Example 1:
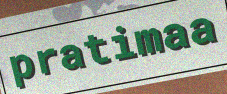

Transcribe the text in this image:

pratimaa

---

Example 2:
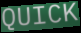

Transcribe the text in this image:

QUICK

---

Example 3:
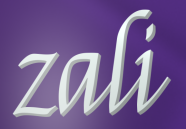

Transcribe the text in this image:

zali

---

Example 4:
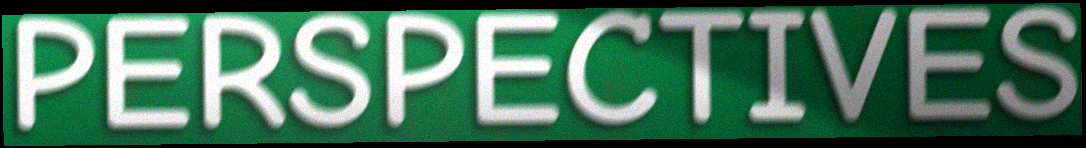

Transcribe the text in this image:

PERSPECTIVES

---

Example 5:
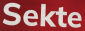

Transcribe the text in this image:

Sekte